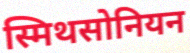
स्मिथसोनियन